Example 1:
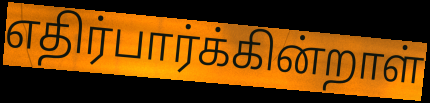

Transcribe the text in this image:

எதிர்பார்க்கின்றாள்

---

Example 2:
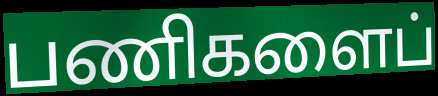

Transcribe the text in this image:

பணிகளைப்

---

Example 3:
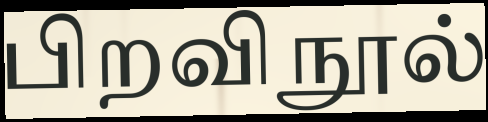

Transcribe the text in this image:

பிறவிநூல்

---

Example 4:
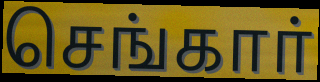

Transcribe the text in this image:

செங்கார்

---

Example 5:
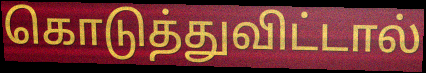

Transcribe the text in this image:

கொடுத்துவிட்டால்